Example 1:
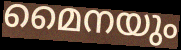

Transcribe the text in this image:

മൈനയും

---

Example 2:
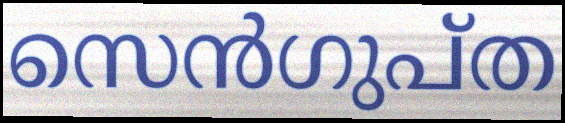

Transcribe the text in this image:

സെൻഗുപ്ത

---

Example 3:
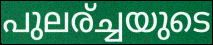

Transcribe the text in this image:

പുലര്ച്ചയുടെ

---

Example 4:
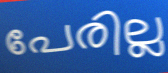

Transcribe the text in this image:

പേരില്ല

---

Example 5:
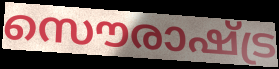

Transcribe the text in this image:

സൌരാഷ്ട്ര